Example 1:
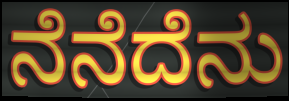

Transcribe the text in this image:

ನೆನೆದೆನು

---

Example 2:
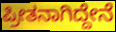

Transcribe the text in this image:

ಪ್ರೀತನಾಗಿದ್ದೇನೆ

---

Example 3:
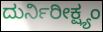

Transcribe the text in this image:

ದುರ್ನಿರೀಕ್ಷ್ಯಂ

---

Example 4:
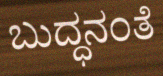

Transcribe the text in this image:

ಬುದ್ಧನಂತೆ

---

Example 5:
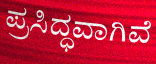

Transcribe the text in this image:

ಪ್ರಸಿದ್ಧವಾಗಿವೆ